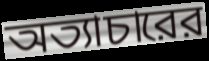
অত্যাচারের